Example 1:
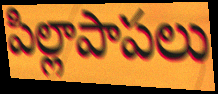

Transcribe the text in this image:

పిల్లాపాపలు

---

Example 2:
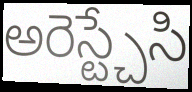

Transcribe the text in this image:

అరెస్ట్చేసి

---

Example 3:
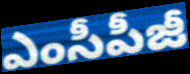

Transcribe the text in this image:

ఎంసీపీజీ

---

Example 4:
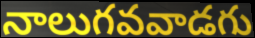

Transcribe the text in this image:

నాలుగవవాడగు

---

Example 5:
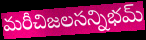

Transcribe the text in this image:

మరీచిజలసన్నిభమ్